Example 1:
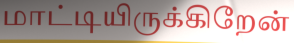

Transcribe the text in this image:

மாட்டியிருக்கிறேன்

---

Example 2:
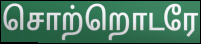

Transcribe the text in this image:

சொற்றொடரே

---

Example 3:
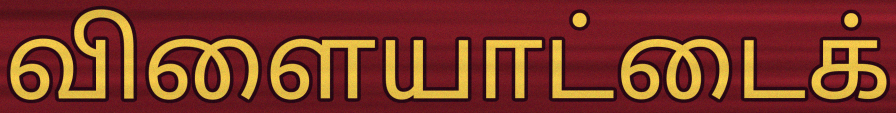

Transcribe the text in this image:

விளையாட்டைக்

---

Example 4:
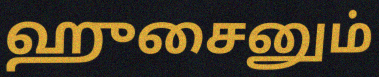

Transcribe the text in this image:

ஹுசைனும்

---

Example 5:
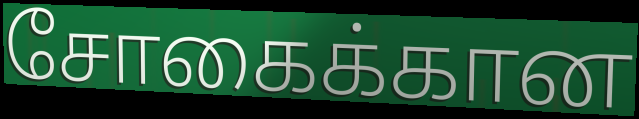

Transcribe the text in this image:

சோகைக்கான